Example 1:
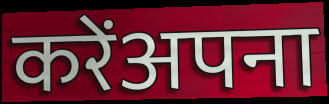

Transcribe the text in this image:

करेंअपना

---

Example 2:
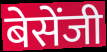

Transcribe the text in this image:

बेसेंजी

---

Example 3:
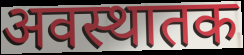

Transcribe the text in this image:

अवस्थातक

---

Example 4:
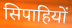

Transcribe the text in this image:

सिपाहियों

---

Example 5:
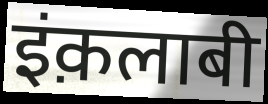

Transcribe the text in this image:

इंक़लाबी